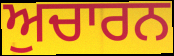
ਅੁਚਾਰਨ